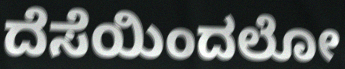
ದೆಸೆಯಿಂದಲೋ